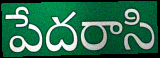
పేదరాసి